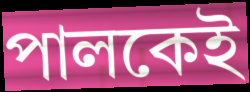
পালকেই